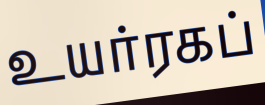
உயர்ரகப்